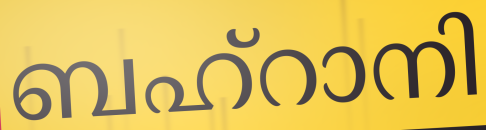
ബഹ്റാനി